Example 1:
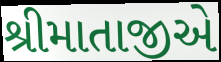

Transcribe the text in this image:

શ્રીમાતાજીએ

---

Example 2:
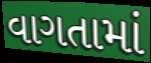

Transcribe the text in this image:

વાગતામાં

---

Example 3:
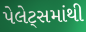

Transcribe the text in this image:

પેલેટ્સમાંથી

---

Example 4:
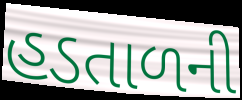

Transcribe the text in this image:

હડતાળની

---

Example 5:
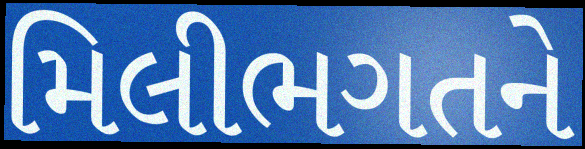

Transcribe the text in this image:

મિલીભગતને